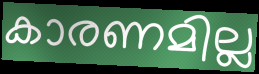
കാരണമില്ല